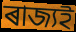
ৰাজ্যই